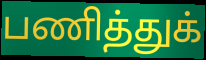
பணித்துக்